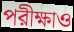
পরীক্ষাও